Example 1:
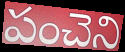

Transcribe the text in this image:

పంచెని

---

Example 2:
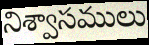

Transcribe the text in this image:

నిశ్వాసములు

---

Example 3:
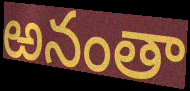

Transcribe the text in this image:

ఱనంతా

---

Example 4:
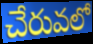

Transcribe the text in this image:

చేరువలో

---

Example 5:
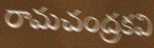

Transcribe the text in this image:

రామచంద్రకవి